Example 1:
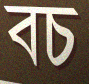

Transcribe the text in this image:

বচ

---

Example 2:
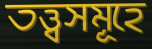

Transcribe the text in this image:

তত্ত্বসমূহে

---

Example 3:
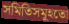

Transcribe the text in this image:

সমিতিসমূহতো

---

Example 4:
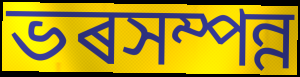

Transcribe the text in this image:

ভৰসম্পন্ন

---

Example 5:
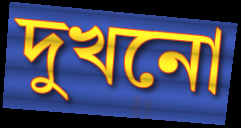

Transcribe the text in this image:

দুখনো